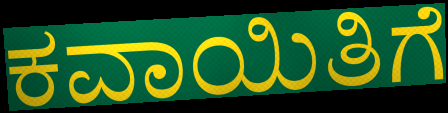
ಕವಾಯಿತಿಗೆ